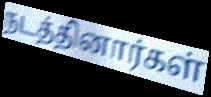
நடத்தினார்கள்